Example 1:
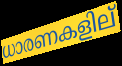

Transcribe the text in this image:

ധാരണകളില്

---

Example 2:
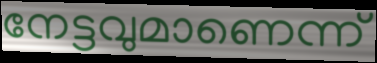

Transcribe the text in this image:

നേട്ടവുമാണെന്ന്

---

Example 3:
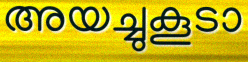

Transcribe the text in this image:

അയച്ചുകൂടാ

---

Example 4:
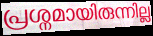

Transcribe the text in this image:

പ്രശ്നമായിരുന്നില്ല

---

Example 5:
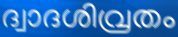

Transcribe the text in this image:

ദ്വാദശിവ്രതം